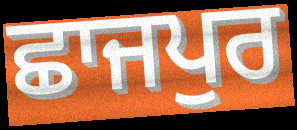
ਛਾਜਪੁਰ